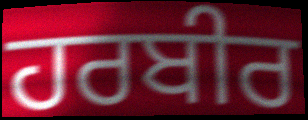
ਹਰਬੀਰ